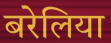
बरेलिया